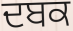
ਦਬਕ